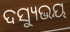
ଦସ୍ୟୁଭୟ